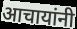
आचायांनी